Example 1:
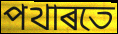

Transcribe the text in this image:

পথাৰতে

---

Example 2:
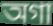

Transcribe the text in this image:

অগা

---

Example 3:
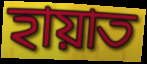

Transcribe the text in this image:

হায়াত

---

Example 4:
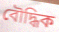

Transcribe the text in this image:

বৌদ্ধিক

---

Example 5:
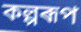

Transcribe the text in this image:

কল্পৰূপ